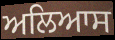
ਅਲਿਆਸ